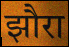
झौरा